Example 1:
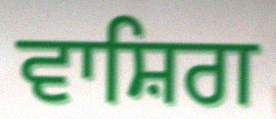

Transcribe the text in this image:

ਵਾਸ਼ਿਗ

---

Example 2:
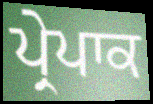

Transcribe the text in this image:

ਪ੍ਰੇਪਾਕ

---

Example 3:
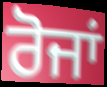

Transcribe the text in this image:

ਰੋਜਾਂ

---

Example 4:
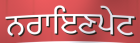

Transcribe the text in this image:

ਨਰਾਇਣਪੇਟ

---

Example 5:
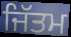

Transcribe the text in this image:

ਜਿੱਤਮ